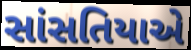
સાંસતિયાએ